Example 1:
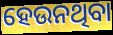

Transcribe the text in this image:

ହେଉନଥିବା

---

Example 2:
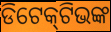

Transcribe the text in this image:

ଡିଟେକ୍‌ଟିଭଙ୍କ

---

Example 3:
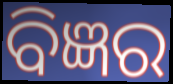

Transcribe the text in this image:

ବିଜ୍ଞର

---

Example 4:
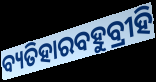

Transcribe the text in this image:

ବ୍ୟତିହାରବହୁବ୍ରୀହି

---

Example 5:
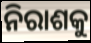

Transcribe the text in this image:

ନିରାଶକୁ